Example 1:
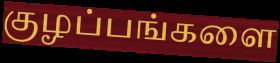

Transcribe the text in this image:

குழப்பங்களை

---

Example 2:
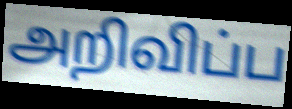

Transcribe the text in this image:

அறிவிப்ப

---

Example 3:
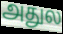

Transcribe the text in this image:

அதுல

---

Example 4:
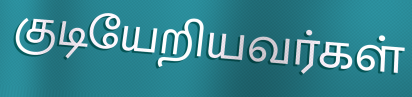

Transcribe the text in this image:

குடியேறியவர்கள்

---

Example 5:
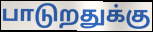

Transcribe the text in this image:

பாடுறதுக்கு